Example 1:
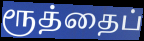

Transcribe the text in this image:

ரூத்தைப்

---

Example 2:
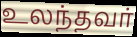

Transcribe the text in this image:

உலந்தவர்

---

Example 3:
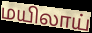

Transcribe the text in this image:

மயிலாய்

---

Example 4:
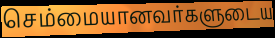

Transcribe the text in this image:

செம்மையானவர்களுடைய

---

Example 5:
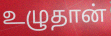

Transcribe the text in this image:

உழுதான்